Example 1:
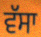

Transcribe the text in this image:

ਵੱਸਾ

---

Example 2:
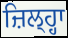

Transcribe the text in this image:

ਜ਼ਿਲ੍ਹ੍ਹਾ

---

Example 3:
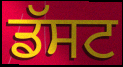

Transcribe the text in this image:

ਡੱਸਟ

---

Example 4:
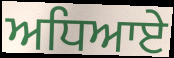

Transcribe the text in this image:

ਅਧਿਆਏ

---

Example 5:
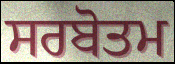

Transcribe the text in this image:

ਸਰਬੋਤਮ